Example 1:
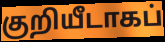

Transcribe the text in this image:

குறியீடாகப்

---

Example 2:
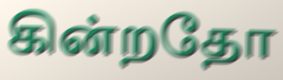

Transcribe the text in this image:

கின்றதோ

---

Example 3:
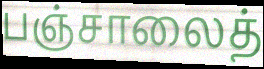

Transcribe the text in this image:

பஞ்சாலைத்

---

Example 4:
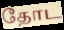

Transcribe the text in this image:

தோட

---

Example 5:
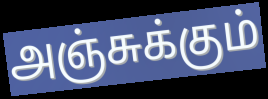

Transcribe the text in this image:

அஞ்சுக்கும்